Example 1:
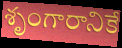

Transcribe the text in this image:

శృంగారానికే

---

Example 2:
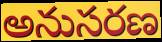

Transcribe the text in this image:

అనుసరణ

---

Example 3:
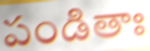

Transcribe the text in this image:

పండితాః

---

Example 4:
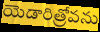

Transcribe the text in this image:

యెడారిత్రోవను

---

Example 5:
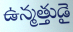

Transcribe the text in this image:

ఉన్మత్తుడై